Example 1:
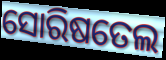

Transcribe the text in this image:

ସୋରିଷତେଲ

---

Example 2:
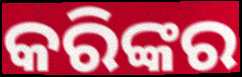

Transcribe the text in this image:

କରିଙ୍କର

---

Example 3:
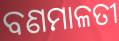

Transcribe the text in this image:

ବଣମାଳତୀ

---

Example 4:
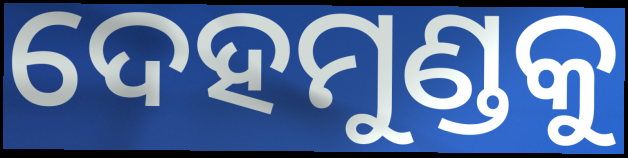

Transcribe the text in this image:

ଦେହମୁଣ୍ଡକୁ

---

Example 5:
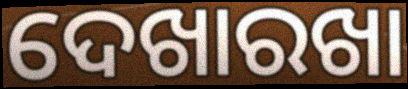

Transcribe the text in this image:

ଦେଖାରଖା